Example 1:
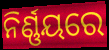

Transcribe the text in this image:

ନିର୍ଣ୍ଣୟରେ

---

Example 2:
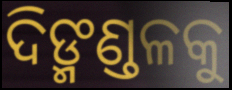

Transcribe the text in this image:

ଦିଙ୍ମଣ୍ଡଳକୁ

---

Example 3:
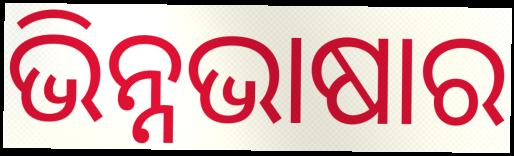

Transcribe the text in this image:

ଭିନ୍ନଭାଷାର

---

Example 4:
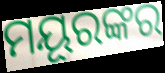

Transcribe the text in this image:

ମୟୂରଙ୍କର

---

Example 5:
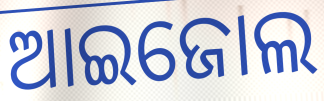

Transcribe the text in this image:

ଆଇଜୋଲ